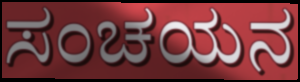
ಸಂಚಯನ